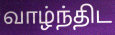
வாழ்ந்திட